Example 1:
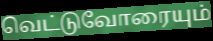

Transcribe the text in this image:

வெட்டுவோரையும்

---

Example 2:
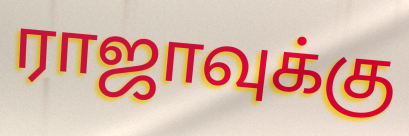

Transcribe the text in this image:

ராஜாவுக்கு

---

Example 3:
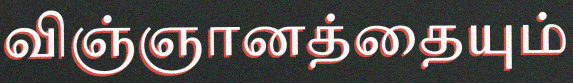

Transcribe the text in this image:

விஞ்ஞானத்தையும்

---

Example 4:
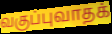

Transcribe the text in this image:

வகுப்புவாதக்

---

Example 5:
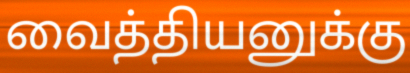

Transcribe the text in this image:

வைத்தியனுக்கு